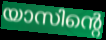
യാസിന്റെ